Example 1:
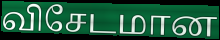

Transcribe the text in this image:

விசேடமான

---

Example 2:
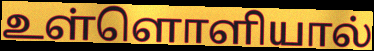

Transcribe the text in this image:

உள்ளொளியால்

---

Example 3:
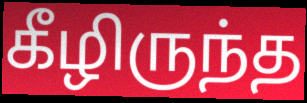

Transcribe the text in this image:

கீழிருந்த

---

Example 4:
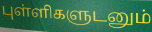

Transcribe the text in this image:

புள்ளிகளுடனும்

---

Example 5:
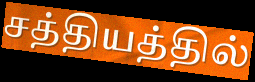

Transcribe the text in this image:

சத்தியத்தில்